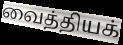
வைத்தியக்